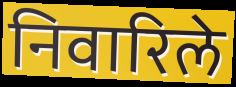
निवारिले